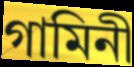
গামিনী